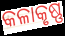
କଳାକୃଷ୍ଣ